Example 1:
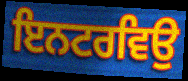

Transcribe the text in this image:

ਇਨਟਰਵਿਉ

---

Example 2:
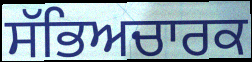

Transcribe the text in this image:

ਸੱਭਿਅਚਾਰਕ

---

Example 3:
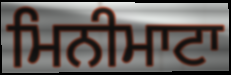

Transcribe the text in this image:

ਮਿਨੀਮਾਟਾ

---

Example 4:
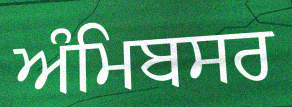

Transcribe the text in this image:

ਅੰਮਿਬਸਰ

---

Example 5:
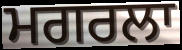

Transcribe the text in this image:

ਮਗਰਲਾ